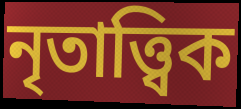
নৃতাত্ত্বিক